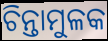
ଚିନ୍ତାମୁଳକ